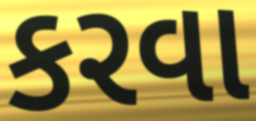
કરવા